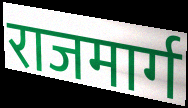
राजमार्ग